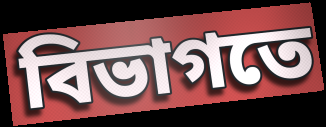
বিভাগতে